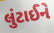
લુંટાઈને